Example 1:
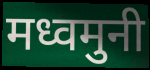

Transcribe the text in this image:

मध्वमुनी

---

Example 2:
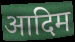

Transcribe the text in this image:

आदिम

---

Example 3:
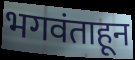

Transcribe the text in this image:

भगवंताहून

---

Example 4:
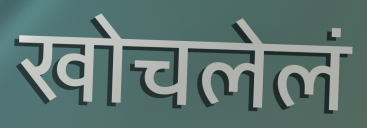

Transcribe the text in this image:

खोचलेलं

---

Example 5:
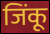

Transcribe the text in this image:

जिंकू